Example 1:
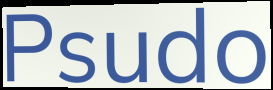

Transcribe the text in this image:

Psudo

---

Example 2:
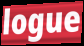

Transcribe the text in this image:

logue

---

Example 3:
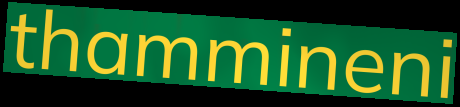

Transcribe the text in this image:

thammineni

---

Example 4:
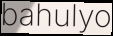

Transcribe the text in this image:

bahulyo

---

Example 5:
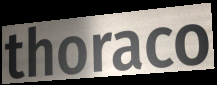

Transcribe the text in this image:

thoraco